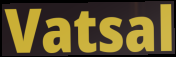
Vatsal